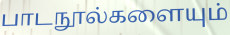
பாடநூல்களையும்